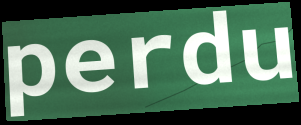
perdu